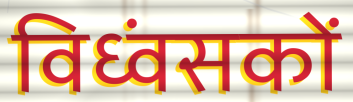
विध्वंसकों